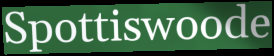
Spottiswoode